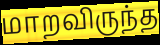
மாறவிருந்த